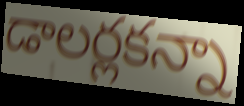
డాలర్లకన్నా